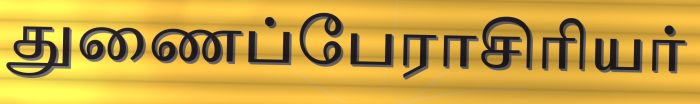
துணைப்பேராசிரியர்